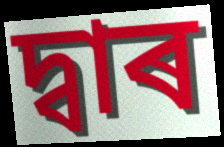
দ্বাৰ